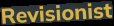
Revisionist